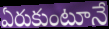
ఏరుకుంటూనే